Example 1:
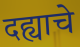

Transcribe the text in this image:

दह्याचे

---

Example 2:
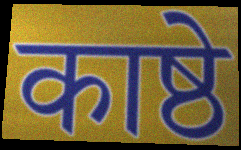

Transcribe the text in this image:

काष्ठे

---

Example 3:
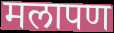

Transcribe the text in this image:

मलापण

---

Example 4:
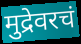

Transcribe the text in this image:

मुद्रेवरचं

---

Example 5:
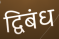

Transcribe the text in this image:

द्विबंध